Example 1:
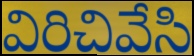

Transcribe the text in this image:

విరిచివేసి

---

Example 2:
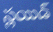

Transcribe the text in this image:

స్లయిడ్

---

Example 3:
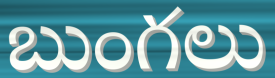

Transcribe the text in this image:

బుంగలు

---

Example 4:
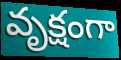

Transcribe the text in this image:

వృక్షంగా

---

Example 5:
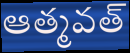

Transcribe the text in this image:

ఆత్మవత్